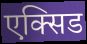
एक्सिड